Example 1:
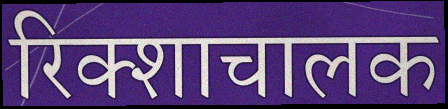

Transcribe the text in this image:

रिक्शाचालक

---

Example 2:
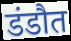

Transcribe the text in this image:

डंडौत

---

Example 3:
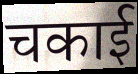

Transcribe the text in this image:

चकाई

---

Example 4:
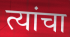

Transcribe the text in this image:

त्यांचा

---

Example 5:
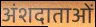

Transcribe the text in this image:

अंशदाताओं